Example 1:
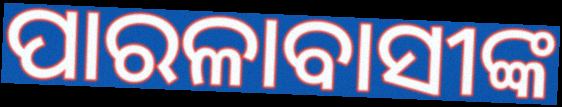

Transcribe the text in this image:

ପାରଳାବାସୀଙ୍କ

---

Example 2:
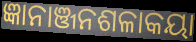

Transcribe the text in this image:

ଜ୍ଞାନାଞ୍ଜନଶଳାକୟା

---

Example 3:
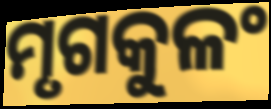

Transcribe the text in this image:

ମୃଗକୁଳଂ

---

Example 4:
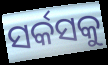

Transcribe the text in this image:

ସର୍କସକୁ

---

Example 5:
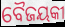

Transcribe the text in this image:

ବୈଜୟକୀ